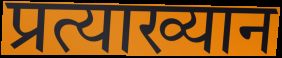
प्रत्याख्यान